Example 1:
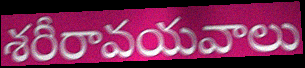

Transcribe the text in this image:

శరీరావయవాలు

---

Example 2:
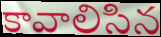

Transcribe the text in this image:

కావాలిసిన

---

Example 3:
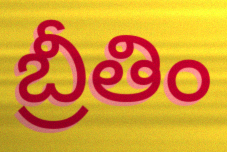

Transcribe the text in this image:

బ్రీతిం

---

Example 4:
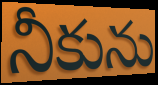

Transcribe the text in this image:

నీకును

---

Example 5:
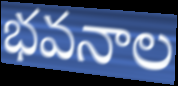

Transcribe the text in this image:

భవనాల